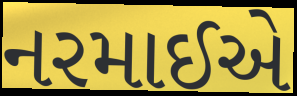
નરમાઈએ